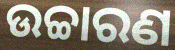
ଉଚ୍ଚାରଣ